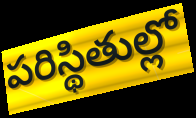
పరిస్థితుల్లో